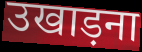
उखाड़ना